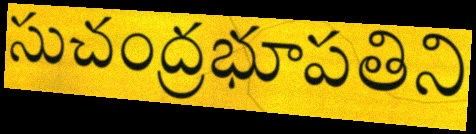
సుచంద్రభూపతిని